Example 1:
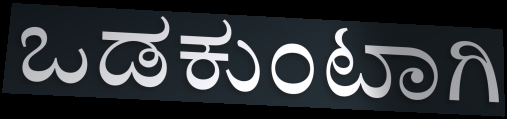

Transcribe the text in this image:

ಒಡಕುಂಟಾಗಿ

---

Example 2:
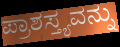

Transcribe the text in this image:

ಪ್ರಾಶಸ್ತ್ಯವನ್ನು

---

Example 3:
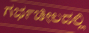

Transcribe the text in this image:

ಗರ್ಭಚೀಲದಲ್ಲಿ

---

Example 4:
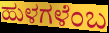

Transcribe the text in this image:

ಹುಳಗಳೆಂಬ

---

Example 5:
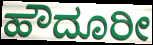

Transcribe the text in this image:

ಹೌದೂರೀ